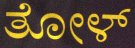
ತೋಳ್